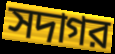
সদাগর